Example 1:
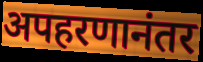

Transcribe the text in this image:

अपहरणानंतर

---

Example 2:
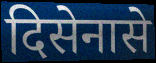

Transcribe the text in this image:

दिसेनासे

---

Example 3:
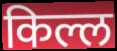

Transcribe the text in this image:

किल्ल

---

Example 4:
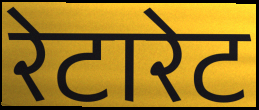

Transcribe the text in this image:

रेटारेट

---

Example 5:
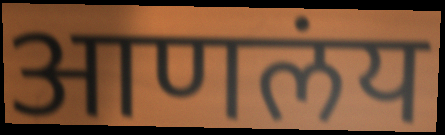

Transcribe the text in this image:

आणलंय